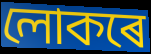
লোকৰে